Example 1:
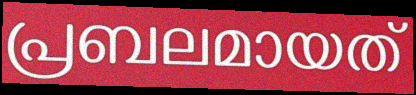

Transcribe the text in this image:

പ്രബലമായത്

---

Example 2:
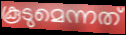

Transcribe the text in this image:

കൂടുമെന്നത്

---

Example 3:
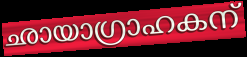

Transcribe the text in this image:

ഛായാഗ്രാഹകന്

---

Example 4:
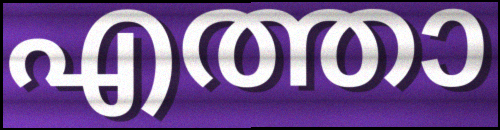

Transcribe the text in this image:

എത്താ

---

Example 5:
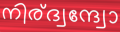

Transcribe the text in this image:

നിര്ദ്വന്ദ്വോ